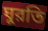
ঘুরতি